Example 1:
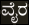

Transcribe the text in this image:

ವೈರ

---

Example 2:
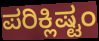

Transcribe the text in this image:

ಪರಿಕ್ಲಿಷ್ಟಂ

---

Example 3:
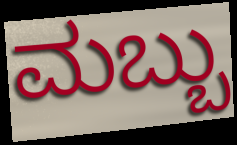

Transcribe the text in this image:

ಮಬ್ಬು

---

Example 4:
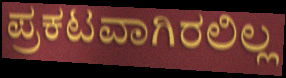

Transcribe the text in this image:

ಪ್ರಕಟವಾಗಿರಲಿಲ್ಲ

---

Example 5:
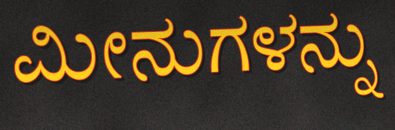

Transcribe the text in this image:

ಮೀನುಗಳನ್ನು